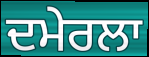
ਦਮੇਰਲਾ